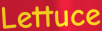
Lettuce